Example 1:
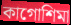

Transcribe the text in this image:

কাগোশিমা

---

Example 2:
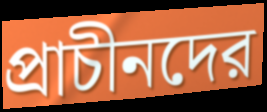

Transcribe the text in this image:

প্রাচীনদের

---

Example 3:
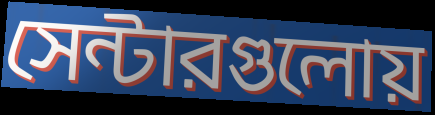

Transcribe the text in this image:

সেন্টারগুলোয়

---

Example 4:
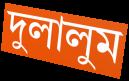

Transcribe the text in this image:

দুলালুম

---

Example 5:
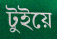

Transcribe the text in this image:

টুইয়ে